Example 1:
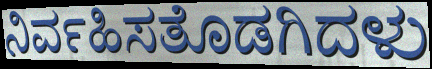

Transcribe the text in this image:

ನಿರ್ವಹಿಸತೊಡಗಿದಳು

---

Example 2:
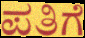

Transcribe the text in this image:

ಪತಿಗೆ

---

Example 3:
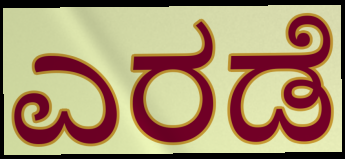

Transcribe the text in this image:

ಎರಡೆ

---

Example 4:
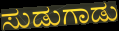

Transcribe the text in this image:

ಸುಡುಗಾಡು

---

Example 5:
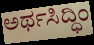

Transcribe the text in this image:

ಅರ್ಥಸಿದ್ಧಿಂ